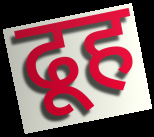
ढूह